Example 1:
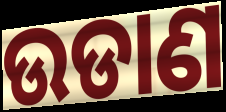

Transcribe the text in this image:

ଉଡାଣ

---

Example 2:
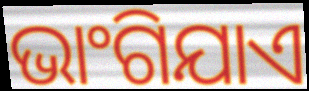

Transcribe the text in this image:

ଭାଂଗିଯାଏ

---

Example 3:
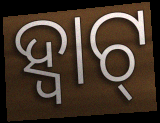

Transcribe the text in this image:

ହ୍ବାଟ୍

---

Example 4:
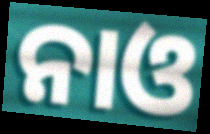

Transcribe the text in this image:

ନାଓ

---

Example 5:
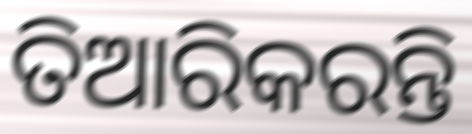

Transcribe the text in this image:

ତିଆରିକରନ୍ତି